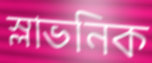
স্লাভনিক